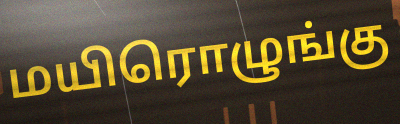
மயிரொழுங்கு